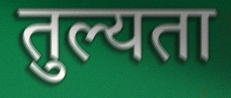
तुल्यता